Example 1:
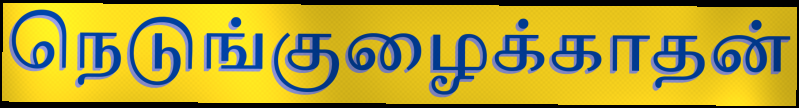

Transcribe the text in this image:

நெடுங்குழைக்காதன்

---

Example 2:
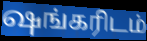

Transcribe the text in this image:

ஷங்கரிடம்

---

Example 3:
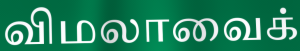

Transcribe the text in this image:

விமலாவைக்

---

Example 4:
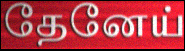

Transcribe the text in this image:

தேனேய்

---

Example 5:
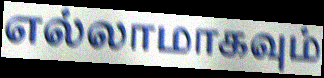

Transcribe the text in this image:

எல்லாமாகவும்